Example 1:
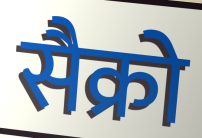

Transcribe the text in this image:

सैक्रो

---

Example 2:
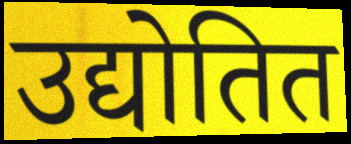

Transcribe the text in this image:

उद्योतित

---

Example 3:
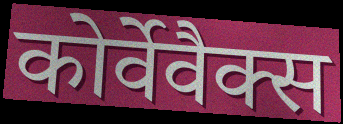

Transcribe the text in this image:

कोर्वेवैक्स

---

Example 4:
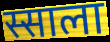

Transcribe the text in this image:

स्साला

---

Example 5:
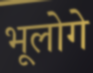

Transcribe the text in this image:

भूलोगे